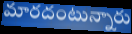
మారదంటున్నారు